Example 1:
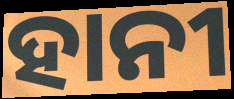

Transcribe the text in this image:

ହାନୀ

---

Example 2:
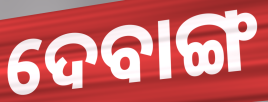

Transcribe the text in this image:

ଦେବାଙ୍ଗ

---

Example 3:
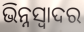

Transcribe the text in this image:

ଭିନ୍ନସ୍ବାଦର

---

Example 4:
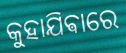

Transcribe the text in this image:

କୁହାଯିଵାରେ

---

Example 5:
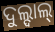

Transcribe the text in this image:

ଦୁଲ୍ଦାଲ୍